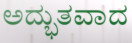
ಅದ್ಭುತವಾದ